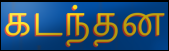
கடந்தன